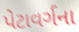
પેટાવર્ગના